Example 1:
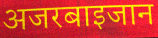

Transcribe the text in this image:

अजरबाइजान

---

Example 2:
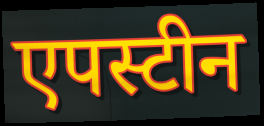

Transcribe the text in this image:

एपस्टीन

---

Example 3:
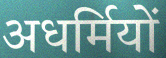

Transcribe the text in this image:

अधर्मियों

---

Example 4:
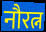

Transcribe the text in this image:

नौरत्न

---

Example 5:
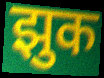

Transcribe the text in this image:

झुक